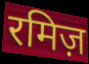
रमिज़